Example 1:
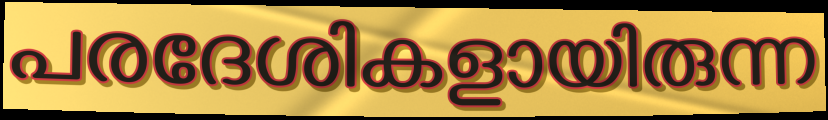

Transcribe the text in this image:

പരദേശികളായിരുന്ന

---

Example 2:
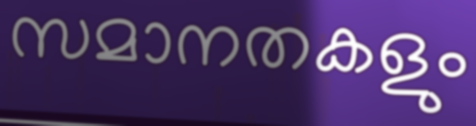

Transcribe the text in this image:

സമാനതകളും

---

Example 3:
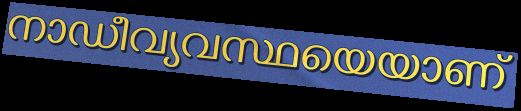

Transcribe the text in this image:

നാഡീവ്യവസ്ഥയെയാണ്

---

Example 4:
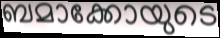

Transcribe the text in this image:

ബമാക്കോയുടെ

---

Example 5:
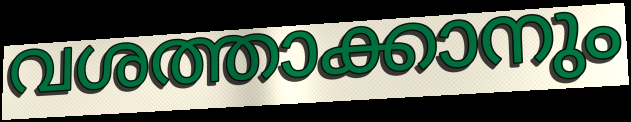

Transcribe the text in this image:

വശത്താക്കാനും